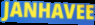
JANHAVEE